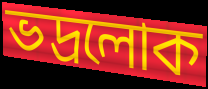
ভদ্ৰলোক